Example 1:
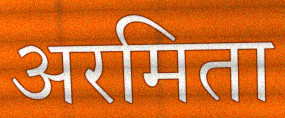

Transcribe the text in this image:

अरमिता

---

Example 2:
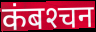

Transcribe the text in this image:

कंबश्चन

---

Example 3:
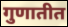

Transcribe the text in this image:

गुणातीत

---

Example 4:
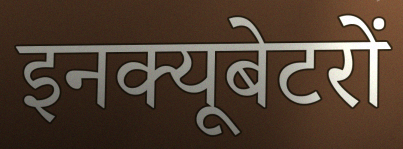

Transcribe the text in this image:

इनक्यूबेटरों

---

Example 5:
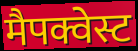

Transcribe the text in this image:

मैपक्वेस्ट